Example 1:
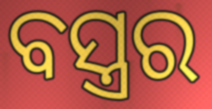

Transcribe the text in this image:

ବସ୍ତ୍ରର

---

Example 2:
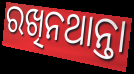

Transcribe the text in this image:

ରଖିନଥାନ୍ତା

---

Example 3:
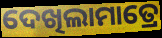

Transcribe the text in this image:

ଦେଖିଲାମାତ୍ରେ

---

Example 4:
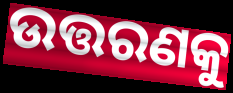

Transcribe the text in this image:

ଉତ୍ତରଣକୁ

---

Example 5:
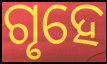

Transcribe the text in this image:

ଗୃହେ